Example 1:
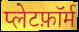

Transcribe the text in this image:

प्लेटफ़ॉर्म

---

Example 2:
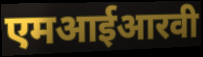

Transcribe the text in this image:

एमआईआरवी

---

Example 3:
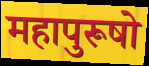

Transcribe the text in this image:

महापुरूषो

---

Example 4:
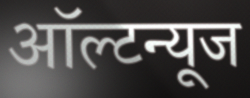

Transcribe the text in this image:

ऑल्टन्यूज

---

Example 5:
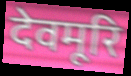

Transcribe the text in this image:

देवमूरि